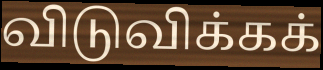
விடுவிக்கக்